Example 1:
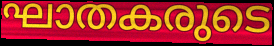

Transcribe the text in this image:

ഘാതകരുടെ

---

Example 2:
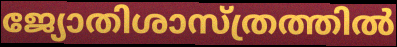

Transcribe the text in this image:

ജ്യോതിശാസ്ത്രത്തിൽ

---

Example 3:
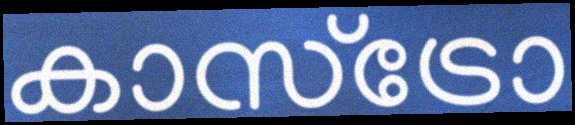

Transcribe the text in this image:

കാസ്ട്രോ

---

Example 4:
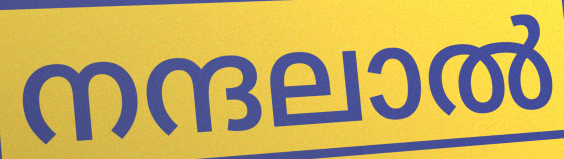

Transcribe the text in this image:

നന്ദലാൽ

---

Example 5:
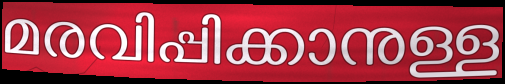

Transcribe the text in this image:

മരവിപ്പിക്കാനുള്ള